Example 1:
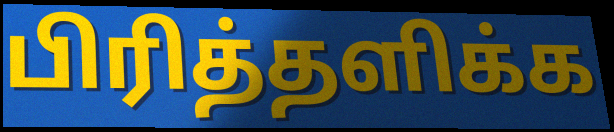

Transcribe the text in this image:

பிரித்தளிக்க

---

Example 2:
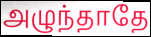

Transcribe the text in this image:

அழுந்தாதே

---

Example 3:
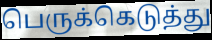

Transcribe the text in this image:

பெருக்கெடுத்து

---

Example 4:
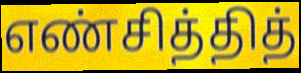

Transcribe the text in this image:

எண்சித்தித்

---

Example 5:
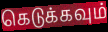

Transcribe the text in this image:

கெடுக்கவும்